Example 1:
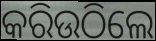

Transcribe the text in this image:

କରିଉଠିଲେ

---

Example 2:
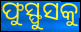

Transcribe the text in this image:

ଫୁସ୍ଫୁସକୁ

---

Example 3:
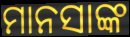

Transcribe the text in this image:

ମାନସାଙ୍କ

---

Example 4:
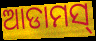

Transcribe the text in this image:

ଆଡାମସ୍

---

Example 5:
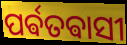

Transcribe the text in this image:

ପର୍ଵତଵାସୀ